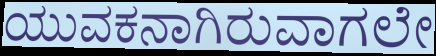
ಯುವಕನಾಗಿರುವಾಗಲೇ